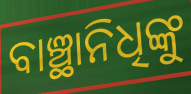
ବାଞ୍ଛାନିଧିଙ୍କୁ